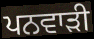
ਪਨਵਾੜੀ